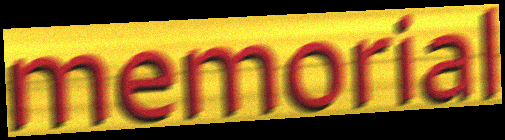
memorial